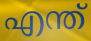
എന്ത്